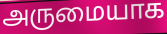
அருமையாக